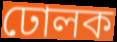
ঢোলক